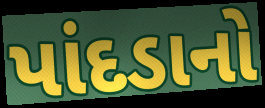
પાંદડાનો